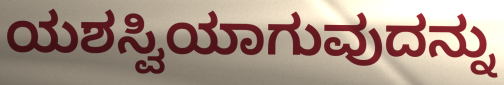
ಯಶಸ್ವಿಯಾಗುವುದನ್ನು